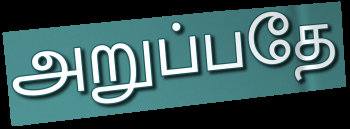
அறுப்பதே